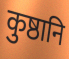
कुष्ठानि